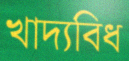
খাদ্যবিধ